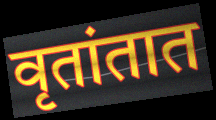
वृतांतात